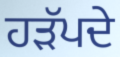
ਹੜੱਪਦੇ